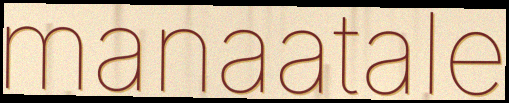
manaatale